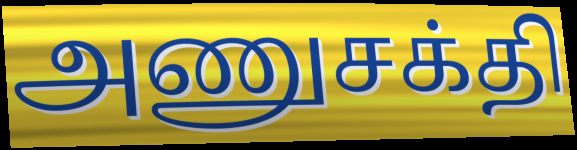
அணுசக்தி